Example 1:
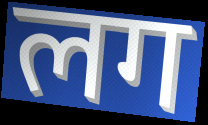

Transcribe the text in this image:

लग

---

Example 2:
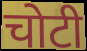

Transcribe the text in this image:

चोटी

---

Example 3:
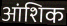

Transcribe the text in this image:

आंशिक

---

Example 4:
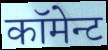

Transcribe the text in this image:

कॉमेन्ट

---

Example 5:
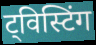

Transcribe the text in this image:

ट्विस्टिंग